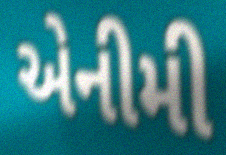
એનીમી